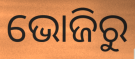
ଭୋଜିରୁ